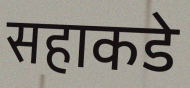
सहाकडे